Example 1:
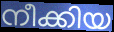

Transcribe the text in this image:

നീക്കിയ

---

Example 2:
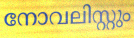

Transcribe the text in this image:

നോവലിസ്റ്റും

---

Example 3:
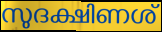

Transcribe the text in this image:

സുദക്ഷിണശ്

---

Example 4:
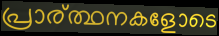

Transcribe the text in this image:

പ്രാര്ത്ഥനകളോടെ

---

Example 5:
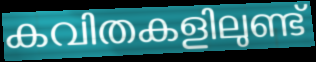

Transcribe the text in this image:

കവിതകളിലുണ്ട്